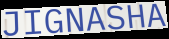
JIGNASHA